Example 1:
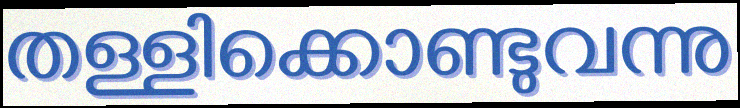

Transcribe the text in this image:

തള്ളിക്കൊണ്ടുവന്നു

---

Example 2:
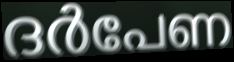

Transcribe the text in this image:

ദർപേണ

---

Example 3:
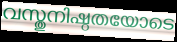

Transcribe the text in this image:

വസ്തുനിഷ്ഠതയോടെ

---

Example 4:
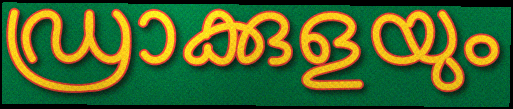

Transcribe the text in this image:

ഡ്രാക്കുളയും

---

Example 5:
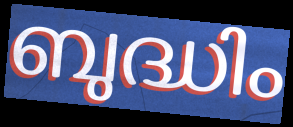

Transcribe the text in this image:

ബുദ്ധിം